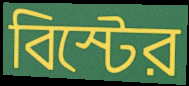
বিস্টের